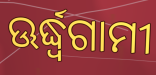
ଊର୍ଦ୍ଧ୍ୱଗାମୀ